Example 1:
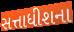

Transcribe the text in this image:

સત્તાધીશના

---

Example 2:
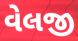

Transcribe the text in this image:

વેલજી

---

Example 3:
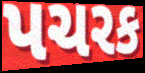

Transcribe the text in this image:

પચરક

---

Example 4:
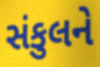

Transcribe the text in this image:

સંકુલને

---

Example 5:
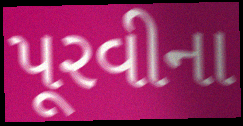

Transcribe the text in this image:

પૂરવીના